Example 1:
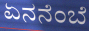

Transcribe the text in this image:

ಏನನೆಂಬೆ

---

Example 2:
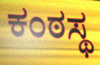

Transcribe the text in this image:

ಕಂಠಸ್ಥ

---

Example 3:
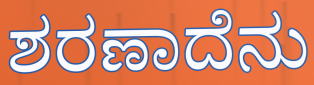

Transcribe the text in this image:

ಶರಣಾದೆನು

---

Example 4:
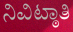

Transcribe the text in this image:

ನಿವಿಟ್ಠಾತಿ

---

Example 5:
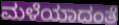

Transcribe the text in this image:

ಮಳೆಯಾದಂತೆ